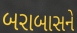
બરાબાસને